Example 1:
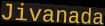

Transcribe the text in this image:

Jivanada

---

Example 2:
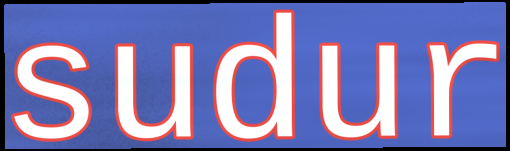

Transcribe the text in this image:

sudur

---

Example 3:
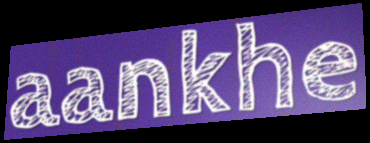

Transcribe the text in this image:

aankhe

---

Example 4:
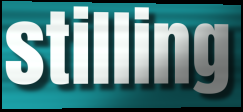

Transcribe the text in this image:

stilling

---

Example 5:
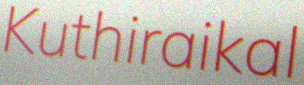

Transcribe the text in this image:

Kuthiraikal